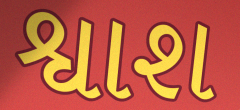
શ્વાશ